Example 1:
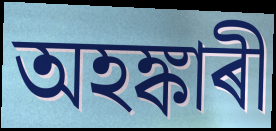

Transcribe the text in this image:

অহঙ্কাৰী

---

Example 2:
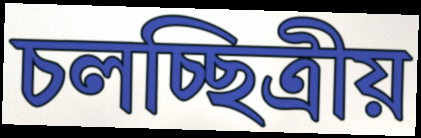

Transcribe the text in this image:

চলচ্ছিত্ৰীয়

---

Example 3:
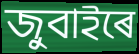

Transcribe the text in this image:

জুবাইৰে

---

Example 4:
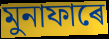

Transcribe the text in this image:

মুনাফাৰে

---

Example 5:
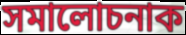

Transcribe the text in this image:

সমালোচনাক